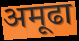
अमूढा